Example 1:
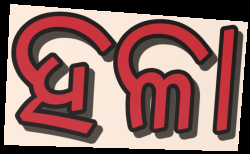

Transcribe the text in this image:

ହଳା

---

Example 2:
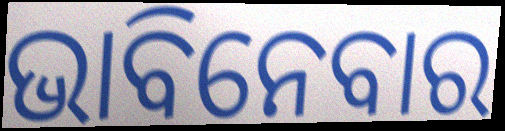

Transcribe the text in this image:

ଭାବିନେବାର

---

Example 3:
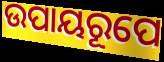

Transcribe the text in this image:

ଉପାୟରୂପେ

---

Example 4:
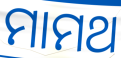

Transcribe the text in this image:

ମାମଥ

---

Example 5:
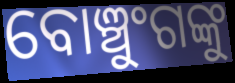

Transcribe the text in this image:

ବୋଞ୍ଚୁଂଗଙ୍କୁ